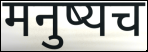
मनुष्यच